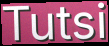
Tutsi